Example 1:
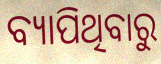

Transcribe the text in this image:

ବ୍ୟାପିଥିବାରୁ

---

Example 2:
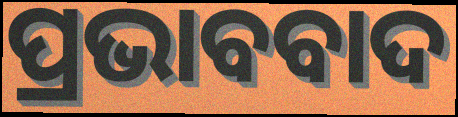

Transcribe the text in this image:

ପ୍ରଭାବବାଦ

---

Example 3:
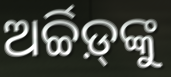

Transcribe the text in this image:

ଅର୍ଚ୍ଚିଡ଼୍‌ଙ୍କୁ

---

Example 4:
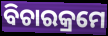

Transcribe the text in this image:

ବିଚାରକ୍ରମେ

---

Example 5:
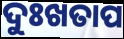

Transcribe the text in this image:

ଦୁଃଖତାପ